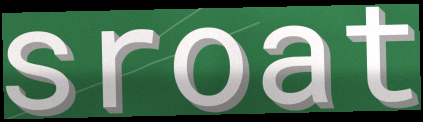
sroat